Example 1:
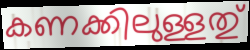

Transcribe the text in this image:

കണക്കിലുള്ളതു്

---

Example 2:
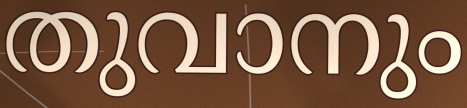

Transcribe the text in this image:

തുവാനും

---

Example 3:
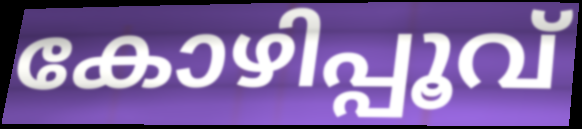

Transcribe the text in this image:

കോഴിപ്പൂവ്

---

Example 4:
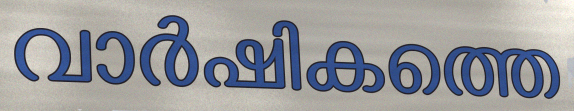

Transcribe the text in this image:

വാർഷികത്തെ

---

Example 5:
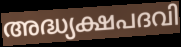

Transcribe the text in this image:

അദ്ധ്യക്ഷപദവി